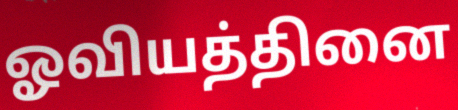
ஓவியத்தினை